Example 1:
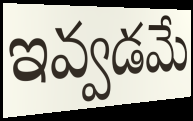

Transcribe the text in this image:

ఇవ్వడమే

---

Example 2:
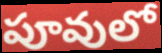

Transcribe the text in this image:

పూవులో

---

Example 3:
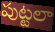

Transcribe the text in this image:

పుట్టలా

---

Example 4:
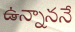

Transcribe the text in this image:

ఉన్నాననే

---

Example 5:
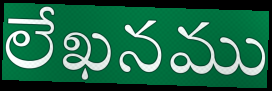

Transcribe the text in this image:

లేఖనము